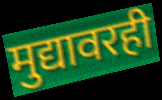
मुद्यावरही